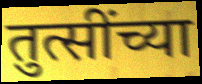
तुत्सींच्या